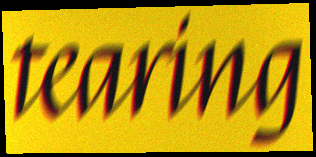
tearing